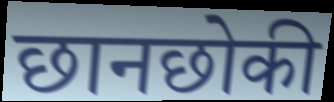
छानछोकी